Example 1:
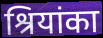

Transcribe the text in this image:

श्रियांका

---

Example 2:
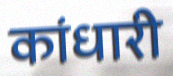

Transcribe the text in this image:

कांधारी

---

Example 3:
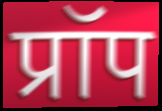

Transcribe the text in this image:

प्रॉप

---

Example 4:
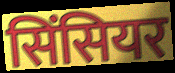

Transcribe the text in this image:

सिंसियर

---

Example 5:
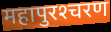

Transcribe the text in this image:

महापुरश्चरण